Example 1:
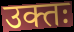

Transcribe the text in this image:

उक्तः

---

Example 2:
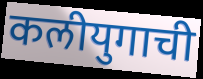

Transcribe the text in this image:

कलीयुगाची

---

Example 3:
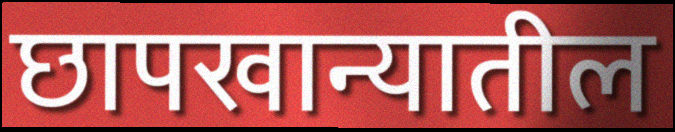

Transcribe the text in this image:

छापखान्यातील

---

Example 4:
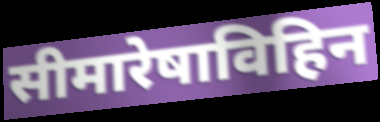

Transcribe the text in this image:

सीमारेषाविहिन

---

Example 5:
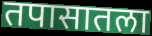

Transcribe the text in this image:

तपासातला